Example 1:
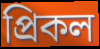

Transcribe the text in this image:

প্রিকল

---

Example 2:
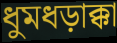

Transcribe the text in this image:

ধুমধড়াক্কা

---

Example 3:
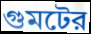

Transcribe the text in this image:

গুমটের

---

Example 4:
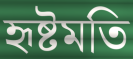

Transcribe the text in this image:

হৃষ্টমতি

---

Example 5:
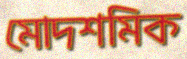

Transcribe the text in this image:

মোদশমিক